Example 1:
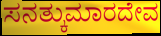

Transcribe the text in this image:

ಸನತ್ಕುಮಾರದೇವ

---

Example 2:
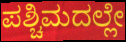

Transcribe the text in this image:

ಪಶ್ಚಿಮದಲ್ಲೇ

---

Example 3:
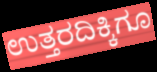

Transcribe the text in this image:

ಉತ್ತರದಿಕ್ಕಿಗೂ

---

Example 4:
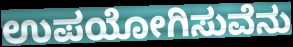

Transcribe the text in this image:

ಉಪಯೋಗಿಸುವೆನು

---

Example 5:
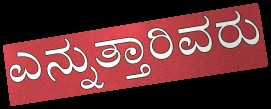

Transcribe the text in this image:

ಎನ್ನುತ್ತಾರಿವರು